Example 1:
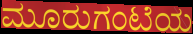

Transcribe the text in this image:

ಮೂರುಗಂಟೆಯ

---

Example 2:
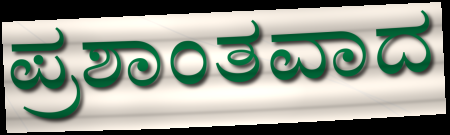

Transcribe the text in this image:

ಪ್ರಶಾಂತವಾದ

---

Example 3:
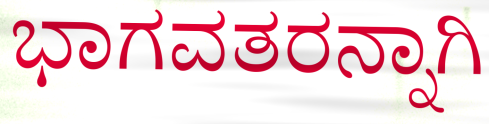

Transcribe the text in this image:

ಭಾಗವತರನ್ನಾಗಿ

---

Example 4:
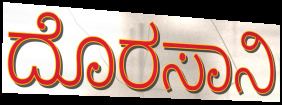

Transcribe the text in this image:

ದೊರಸಾನಿ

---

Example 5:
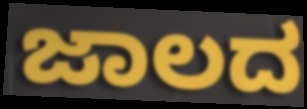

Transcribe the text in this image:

ಜಾಲದ